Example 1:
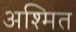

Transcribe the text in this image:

अश्मित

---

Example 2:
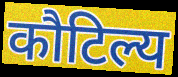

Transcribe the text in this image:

कौटिल्य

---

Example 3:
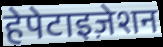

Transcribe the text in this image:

हेपेटाइज़ेशन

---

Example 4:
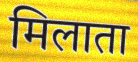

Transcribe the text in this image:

मिलाता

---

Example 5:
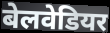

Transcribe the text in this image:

बेलवेडियर